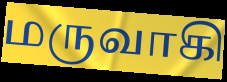
மருவாகி